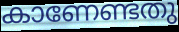
കാണേണ്ടതു